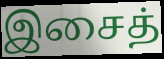
இசைத்